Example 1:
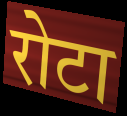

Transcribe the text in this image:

रोटा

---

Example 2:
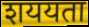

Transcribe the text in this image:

शययता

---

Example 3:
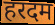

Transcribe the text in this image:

हरदम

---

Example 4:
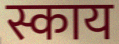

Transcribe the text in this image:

स्काय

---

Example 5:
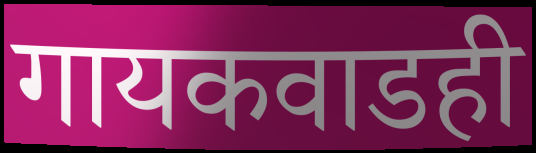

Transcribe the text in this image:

गायकवाडही